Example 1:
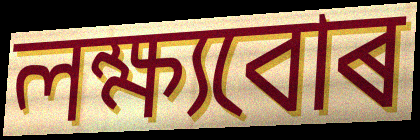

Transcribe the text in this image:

লক্ষ্যবোৰ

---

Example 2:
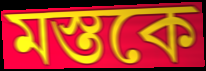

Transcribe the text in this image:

মস্তকে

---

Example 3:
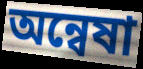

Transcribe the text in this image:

অন্বেষা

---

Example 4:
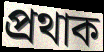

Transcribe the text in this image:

প্ৰথাক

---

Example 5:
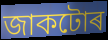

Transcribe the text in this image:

জাকটোৰ